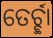
ତେର୍ଚ୍ଛା